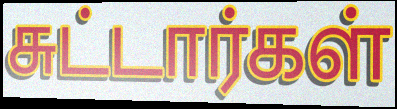
சுட்டார்கள்